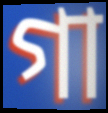
গা